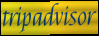
tripadvisor